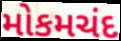
મોકમચંદ